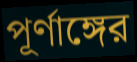
পূর্ণাঙ্গের